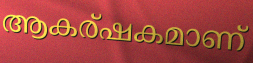
ആകര്ഷകമാണ്